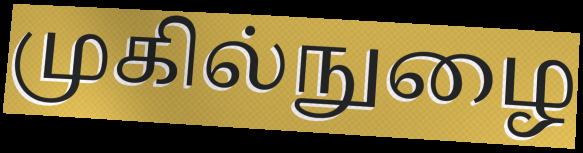
முகில்நுழை